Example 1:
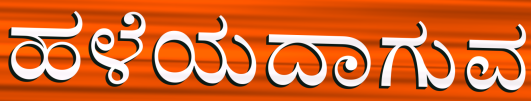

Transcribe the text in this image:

ಹಳೆಯದಾಗುವ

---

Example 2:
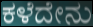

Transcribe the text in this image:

ಕಳೆದೇನು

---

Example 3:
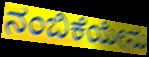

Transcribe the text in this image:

ನಂಬಿಕೆಯೇನು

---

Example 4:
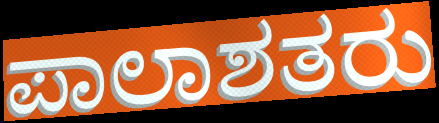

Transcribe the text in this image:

ಪಾಲಾಶತರು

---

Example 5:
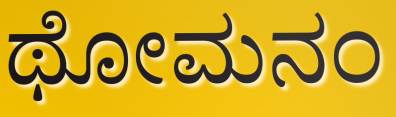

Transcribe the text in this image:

ಥೋಮನಂ